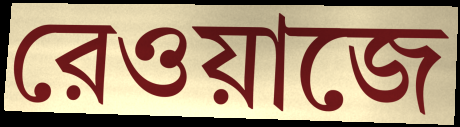
রেওয়াজে